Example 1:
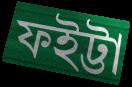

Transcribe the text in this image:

ফইট্টা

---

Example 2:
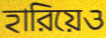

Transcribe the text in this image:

হারিয়েও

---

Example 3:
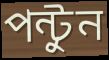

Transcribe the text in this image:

পন্টুন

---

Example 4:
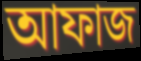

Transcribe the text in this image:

আফাজ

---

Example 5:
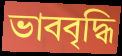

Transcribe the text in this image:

ভাববৃদ্ধি